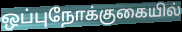
ஒப்புநோக்குகையில்